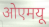
ओएमयू